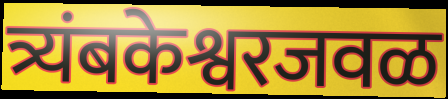
त्र्यंबकेश्वरजवळ